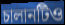
চালানটিও